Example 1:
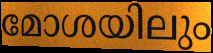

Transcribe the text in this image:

മോശയിലും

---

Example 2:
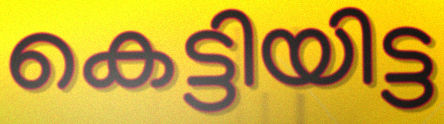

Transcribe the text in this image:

കെട്ടിയിട്ട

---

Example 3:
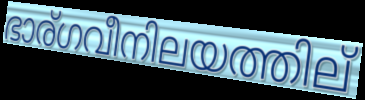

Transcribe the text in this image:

ഭാര്ഗവീനിലയത്തില്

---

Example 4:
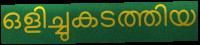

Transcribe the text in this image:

ഒളിച്ചുകടത്തിയ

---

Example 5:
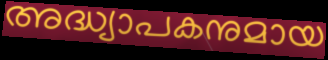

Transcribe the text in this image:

അദ്ധ്യാപകനുമായ